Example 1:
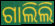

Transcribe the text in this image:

ଗାଲିଲି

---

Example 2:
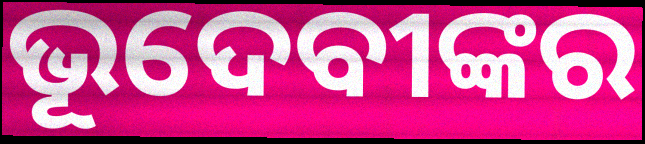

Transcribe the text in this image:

ଭୂଦେବୀଙ୍କର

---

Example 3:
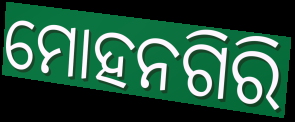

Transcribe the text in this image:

ମୋହନଗିରି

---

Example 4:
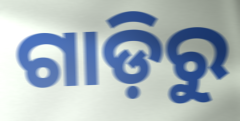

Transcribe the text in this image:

ଗାଡ଼ିରୁ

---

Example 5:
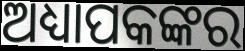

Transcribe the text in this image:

ଅଧ୍ୟାପକଙ୍କର